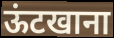
ऊंटखाना